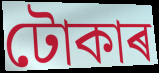
টোকাৰ